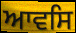
ਆਵਸਿ